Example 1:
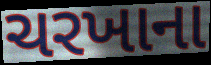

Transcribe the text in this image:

ચરખાના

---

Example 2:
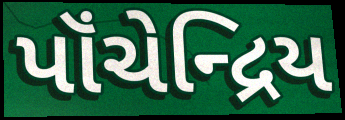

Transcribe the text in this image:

પૉંચેન્દ્રિય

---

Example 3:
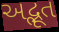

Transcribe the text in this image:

અદ્ભૂત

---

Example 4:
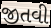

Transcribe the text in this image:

જીતવી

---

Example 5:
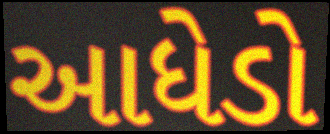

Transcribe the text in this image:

આધેડો